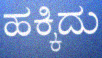
ಹಕ್ಕಿದು